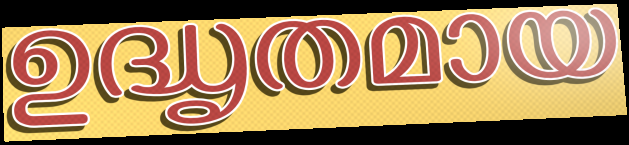
ഉദ്ധൃതമായ